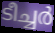
ടീച്ചർ